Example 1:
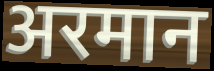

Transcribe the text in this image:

अरमान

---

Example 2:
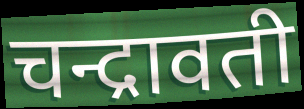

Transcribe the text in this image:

चन्द्रावती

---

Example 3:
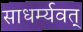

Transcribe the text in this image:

साधर्म्यवत्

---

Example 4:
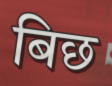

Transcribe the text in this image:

बिछ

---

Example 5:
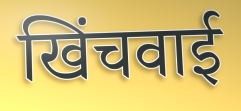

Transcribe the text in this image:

खिंचवाई